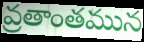
వ్రతాంతమున